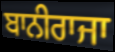
ਬਾਨੀਰਾਜਾ